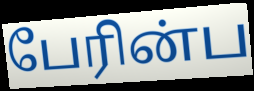
பேரின்ப